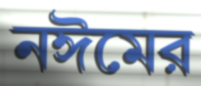
নঈমের